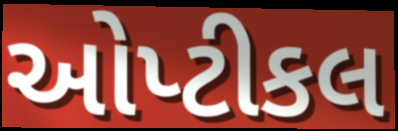
ઓપ્ટીકલ